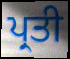
ਪ੍ਰਤੀ